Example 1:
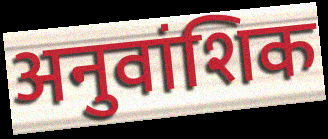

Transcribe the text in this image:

अनुवांशिक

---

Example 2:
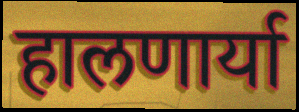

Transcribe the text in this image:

हालणार्या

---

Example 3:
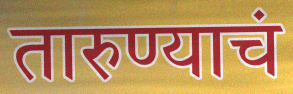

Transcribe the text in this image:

तारुण्याचं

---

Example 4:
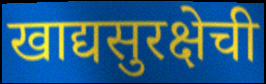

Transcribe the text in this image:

खाद्यसुरक्षेची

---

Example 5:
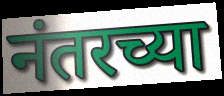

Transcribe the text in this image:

नंतरच्या